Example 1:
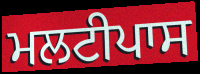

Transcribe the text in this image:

ਮਲਟੀਪਾਸ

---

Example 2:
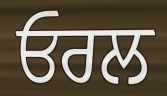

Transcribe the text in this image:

ਓਰਲ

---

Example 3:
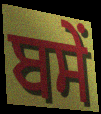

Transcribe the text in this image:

ਬਸੇਂ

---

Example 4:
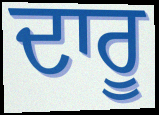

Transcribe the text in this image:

ਦਾਰੂ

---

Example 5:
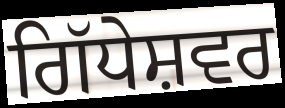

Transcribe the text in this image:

ਗਿੱਧੇਸ਼ਵਰ